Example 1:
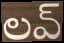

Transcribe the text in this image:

లవ్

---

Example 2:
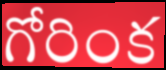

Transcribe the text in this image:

గోరింక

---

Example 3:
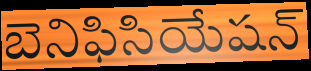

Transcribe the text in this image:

బెనిఫిసియేషన్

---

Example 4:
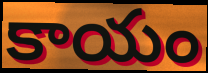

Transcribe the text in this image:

కాయం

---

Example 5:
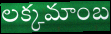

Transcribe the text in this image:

లక్కమాంబ